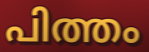
പിത്തം